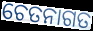
ଚେତନାଗତ